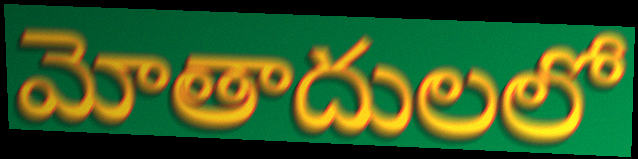
మోతాదులలో